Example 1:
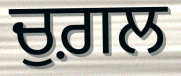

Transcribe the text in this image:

ਚੁਗ਼ਲ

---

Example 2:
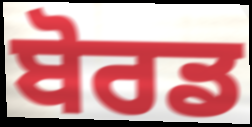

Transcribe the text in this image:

ਬੋਰਡ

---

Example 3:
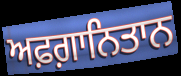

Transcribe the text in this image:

ਅਫ਼ਗ਼ਾਨਿਤਾਨ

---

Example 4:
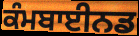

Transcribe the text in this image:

ਕੰਮਬਾਈਨਡ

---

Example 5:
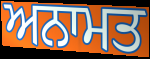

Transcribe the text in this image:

ਅਨਾਮਤ